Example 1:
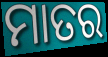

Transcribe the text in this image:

ମାତର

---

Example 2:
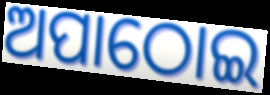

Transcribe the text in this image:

ଅପାଠୋଇ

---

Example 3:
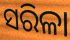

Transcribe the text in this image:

ସରିଳା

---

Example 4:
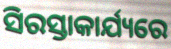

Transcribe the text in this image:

ସିରସ୍ତାକାର୍ଯ୍ୟରେ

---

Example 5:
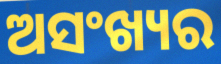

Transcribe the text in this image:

ଅସଂଖ୍ୟର